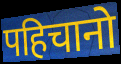
पहिचानो